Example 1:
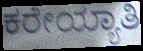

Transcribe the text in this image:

ಕರೇಯ್ಯಾತಿ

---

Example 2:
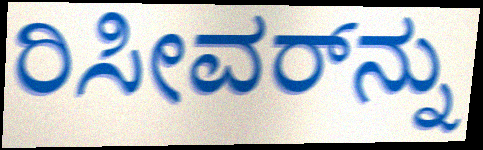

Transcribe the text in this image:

ರಿಸೀವರ್‌ನ್ನು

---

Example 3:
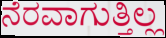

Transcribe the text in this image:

ನೆರವಾಗುತ್ತಿಲ್ಲ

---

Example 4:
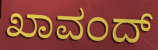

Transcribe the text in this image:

ಖಾವಂದ್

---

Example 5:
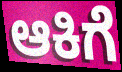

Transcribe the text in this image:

ಆಕಿಗೆ